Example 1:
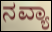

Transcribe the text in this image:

ನವ್ಯಾ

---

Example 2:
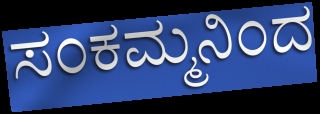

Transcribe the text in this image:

ಸಂಕಮ್ಮನಿಂದ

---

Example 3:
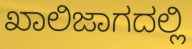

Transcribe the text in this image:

ಖಾಲಿಜಾಗದಲ್ಲಿ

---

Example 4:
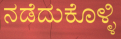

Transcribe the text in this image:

ನಡೆದುಕೊಳ್ಳಿ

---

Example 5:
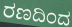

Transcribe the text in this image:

ರಣದಿಂದ